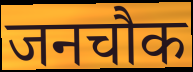
जनचौक